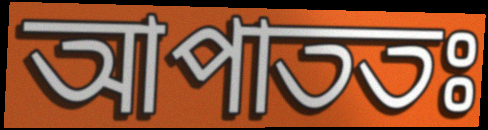
আপাততঃ